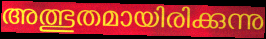
അത്ഭുതമായിരിക്കുന്നു